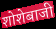
शोशेबाजी